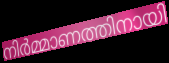
നിർമ്മാണത്തിനായി